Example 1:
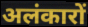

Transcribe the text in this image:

अलंकारों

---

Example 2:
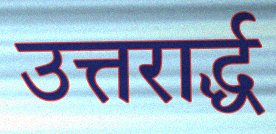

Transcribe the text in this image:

उत्तरार्द्ध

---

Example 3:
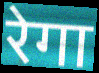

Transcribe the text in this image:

रेगा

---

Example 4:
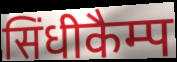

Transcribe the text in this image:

सिंधीकैम्प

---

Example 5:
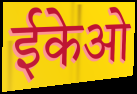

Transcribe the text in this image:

ईकेओ